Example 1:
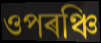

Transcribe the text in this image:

ওপৰঞ্চি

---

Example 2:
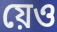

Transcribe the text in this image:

য়েও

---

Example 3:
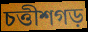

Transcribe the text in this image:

চত্তীশগড়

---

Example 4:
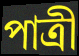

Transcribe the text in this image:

পাত্ৰী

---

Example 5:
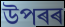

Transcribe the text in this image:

উপৰৰ